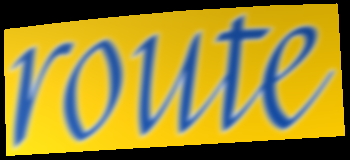
route